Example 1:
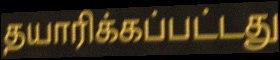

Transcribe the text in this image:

தயாரிக்கப்பட்டது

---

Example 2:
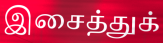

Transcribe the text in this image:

இசைத்துக்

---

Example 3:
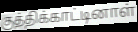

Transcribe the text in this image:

குத்திக்காட்டினாள்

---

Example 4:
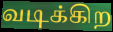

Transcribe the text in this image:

வடிக்கிற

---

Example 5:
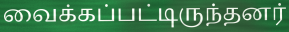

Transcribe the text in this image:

வைக்கப்பட்டிருந்தனர்